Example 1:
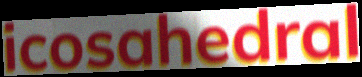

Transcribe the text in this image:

icosahedral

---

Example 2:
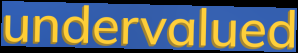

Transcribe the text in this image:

undervalued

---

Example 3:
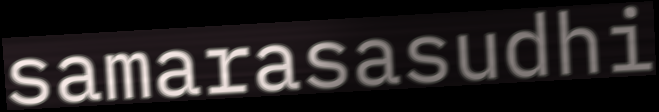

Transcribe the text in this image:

samarasasudhi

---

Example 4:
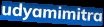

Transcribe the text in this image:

udyamimitra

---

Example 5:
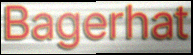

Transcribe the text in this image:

Bagerhat